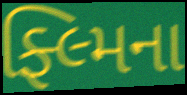
ફ્લ્મિના